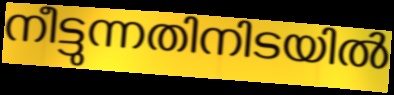
നീട്ടുന്നതിനിടയിൽ